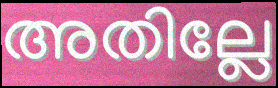
അതില്ലേ